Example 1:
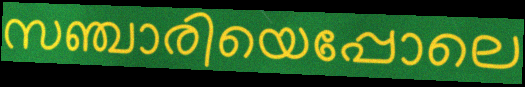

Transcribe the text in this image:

സഞ്ചാരിയെപ്പോലെ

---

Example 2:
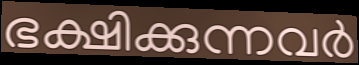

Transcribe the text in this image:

ഭക്ഷിക്കുന്നവർ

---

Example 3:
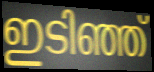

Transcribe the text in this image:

ഇടിഞ്ഞ്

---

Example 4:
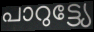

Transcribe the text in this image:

പാറുട്ട്യേ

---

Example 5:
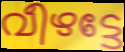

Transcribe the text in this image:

വീഴട്ടേ